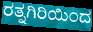
ರತ್ನಗಿರಿಯಿಂದ